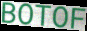
BOTOF